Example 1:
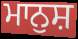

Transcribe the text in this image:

ਮਾਨੁਸ਼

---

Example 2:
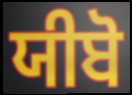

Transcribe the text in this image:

ਯੀਬੋ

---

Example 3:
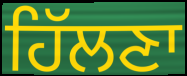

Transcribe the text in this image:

ਹਿੱਲਣਾ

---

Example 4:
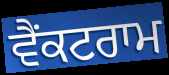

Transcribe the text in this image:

ਵੈਂਕਟਰਾਮ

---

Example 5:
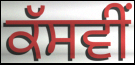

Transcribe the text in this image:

ਕੱਸਵੀਂ